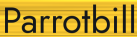
Parrotbill